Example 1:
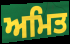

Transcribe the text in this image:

ਅਮਿਤ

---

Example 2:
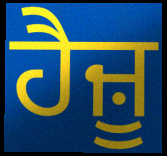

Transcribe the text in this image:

ਹੈਜ਼ੂ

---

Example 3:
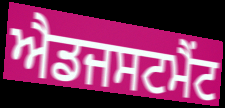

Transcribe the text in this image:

ਐਡਜਸਟਮੈਂਟ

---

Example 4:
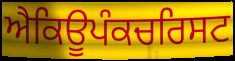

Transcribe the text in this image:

ਐਕਿਊਪੰਕਚਰਿਸਟ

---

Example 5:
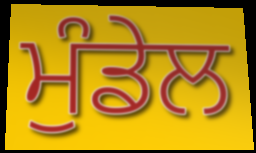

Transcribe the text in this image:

ਮੁੰਡੇਲ